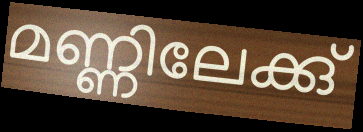
മണ്ണിലേക്കു്